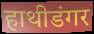
हाथीडंगर